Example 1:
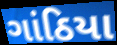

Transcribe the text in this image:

ગાંઠિયા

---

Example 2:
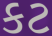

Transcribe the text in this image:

કટ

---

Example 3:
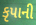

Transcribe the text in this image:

કૃપાની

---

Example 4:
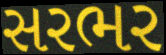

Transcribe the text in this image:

સરભર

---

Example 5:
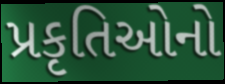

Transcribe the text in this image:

પ્રકૃતિઓનો